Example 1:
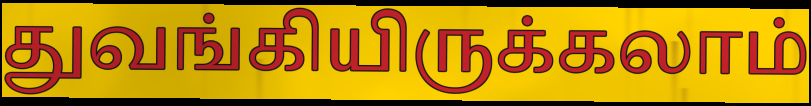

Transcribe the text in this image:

துவங்கியிருக்கலாம்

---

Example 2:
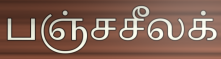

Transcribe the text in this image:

பஞ்சசீலக்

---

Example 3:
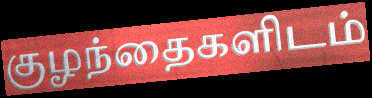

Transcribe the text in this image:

குழந்தைகளிடம்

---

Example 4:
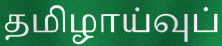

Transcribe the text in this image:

தமிழாய்வுப்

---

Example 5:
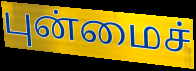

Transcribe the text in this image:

புன்மைச்